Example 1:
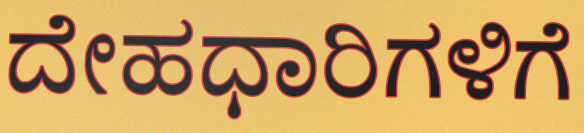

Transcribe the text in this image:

ದೇಹಧಾರಿಗಳಿಗೆ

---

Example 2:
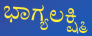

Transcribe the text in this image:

ಭಾಗ್ಯಲಕ್ಷ್ಮಿ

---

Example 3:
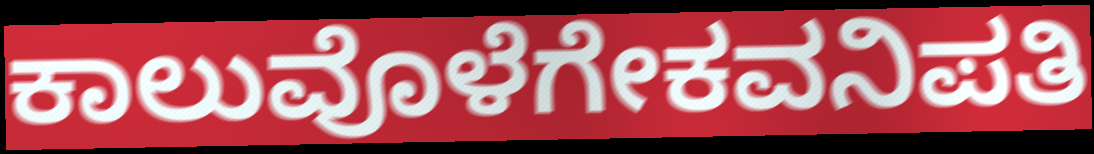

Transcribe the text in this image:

ಕಾಲುವೊಳೆಗೇಕವನಿಪತಿ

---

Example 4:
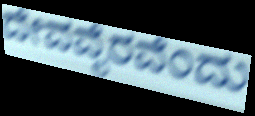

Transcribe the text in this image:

ದೇವವೈರವೆಂದು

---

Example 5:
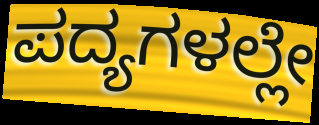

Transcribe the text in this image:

ಪದ್ಯಗಳಲ್ಲೇ